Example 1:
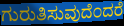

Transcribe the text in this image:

ಗುರುತಿಸುವುದೆಂದರೆ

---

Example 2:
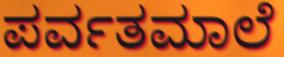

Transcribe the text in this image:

ಪರ್ವತಮಾಲೆ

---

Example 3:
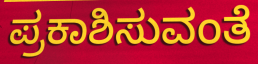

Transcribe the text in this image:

ಪ್ರಕಾಶಿಸುವಂತೆ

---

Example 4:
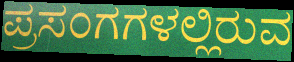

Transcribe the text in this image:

ಪ್ರಸಂಗಗಳಲ್ಲಿರುವ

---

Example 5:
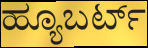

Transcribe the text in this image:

ಹ್ಯೂಬರ್ಟ್